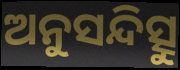
ଅନୁସନ୍ଦିତ୍ସୁ